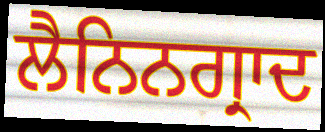
ਲੈਨਿਨਗ੍ਰਾਦ